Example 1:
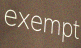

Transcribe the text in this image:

exempt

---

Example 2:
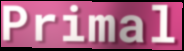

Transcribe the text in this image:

Primal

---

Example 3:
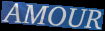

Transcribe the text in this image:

AMOUR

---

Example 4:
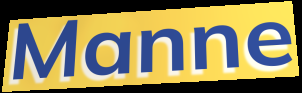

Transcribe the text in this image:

Manne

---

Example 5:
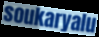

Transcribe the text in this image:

soukaryalu